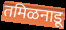
तमिळनाडू